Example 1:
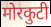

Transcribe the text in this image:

मोरकुटी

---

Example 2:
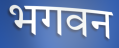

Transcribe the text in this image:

भगवन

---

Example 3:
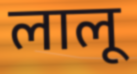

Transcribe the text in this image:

लालू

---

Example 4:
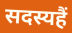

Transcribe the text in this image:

सदस्यहैं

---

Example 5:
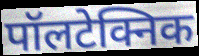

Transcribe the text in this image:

पॉलटेक्निक